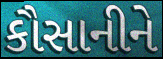
કૌસાનીને